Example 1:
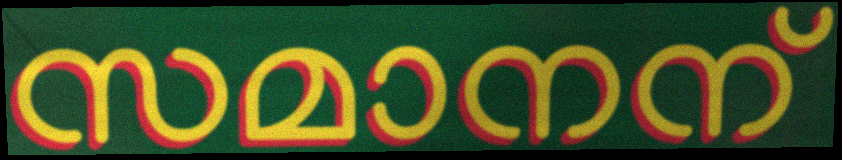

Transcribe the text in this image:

സമാനന്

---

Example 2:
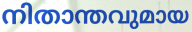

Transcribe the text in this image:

നിതാന്തവുമായ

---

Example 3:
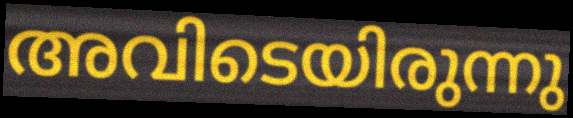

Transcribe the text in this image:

അവിടെയിരുന്നു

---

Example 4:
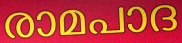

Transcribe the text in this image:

രാമപാദ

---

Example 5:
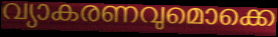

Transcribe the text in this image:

വ്യാകരണവുമൊക്കെ